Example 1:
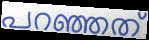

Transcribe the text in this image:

പറഞ്ഞത്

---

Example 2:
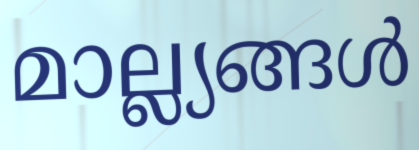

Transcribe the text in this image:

മാല്ല്യങ്ങൾ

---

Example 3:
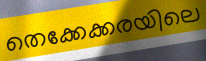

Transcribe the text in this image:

തെക്കേക്കരയിലെ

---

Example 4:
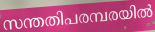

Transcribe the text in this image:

സന്തതിപരമ്പരയിൽ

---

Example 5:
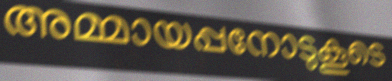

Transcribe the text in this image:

അമ്മായപ്പനോടുകൂടെ